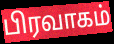
பிரவாகம்